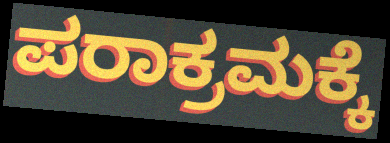
ಪರಾಕ್ರಮಕ್ಕೆ